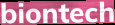
biontech